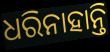
ଧରିନାହାନ୍ତି